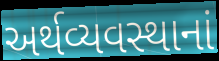
અર્થવ્યવસ્થાનાં